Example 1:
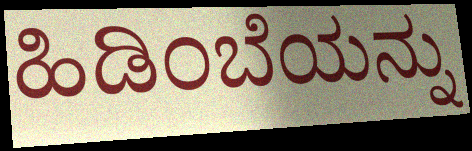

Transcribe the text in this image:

ಹಿಡಿಂಬೆಯನ್ನು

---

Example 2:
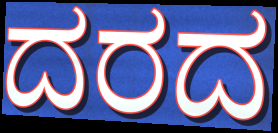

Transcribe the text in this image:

ದರದ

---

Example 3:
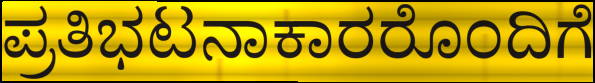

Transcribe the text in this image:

ಪ್ರತಿಭಟನಾಕಾರರೊಂದಿಗೆ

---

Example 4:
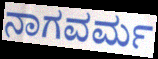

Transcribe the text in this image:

ನಾಗವರ್ಮ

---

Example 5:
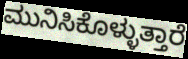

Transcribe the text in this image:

ಮುನಿಸಿಕೊಳ್ಳುತ್ತಾರೆ